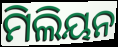
ମିଲିୟନ